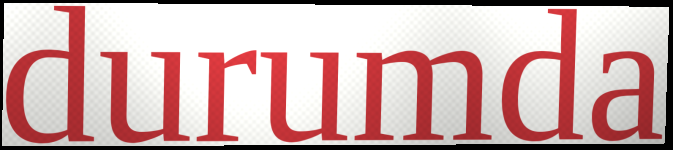
durumda